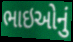
ભાઇઓનું